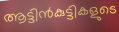
ആട്ടിൻകുട്ടികളുടെ